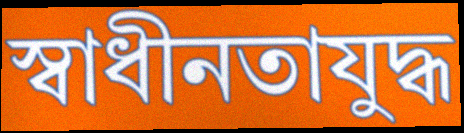
স্বাধীনতাযুদ্ধ